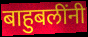
बाहुबलींनी